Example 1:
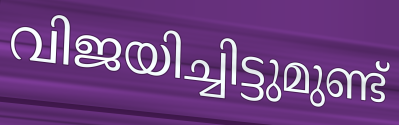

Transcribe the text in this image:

വിജയിച്ചിട്ടുമുണ്ട്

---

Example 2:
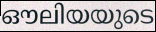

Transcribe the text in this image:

ഔലിയയുടെ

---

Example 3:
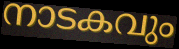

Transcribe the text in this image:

നാടകവും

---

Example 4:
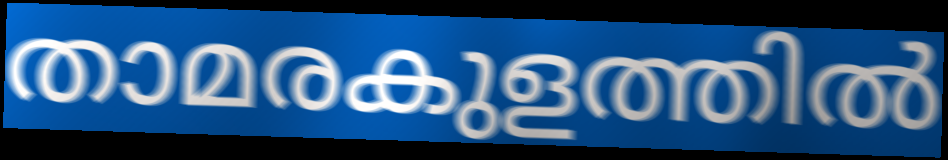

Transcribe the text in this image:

താമരകുളത്തിൽ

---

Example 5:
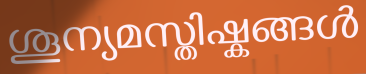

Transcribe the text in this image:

ശൂന്യമസ്തിഷ്കങ്ങൾ